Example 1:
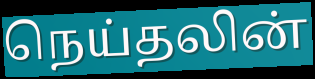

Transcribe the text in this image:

நெய்தலின்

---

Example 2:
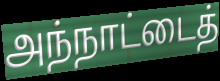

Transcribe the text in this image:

அந்நாட்டைத்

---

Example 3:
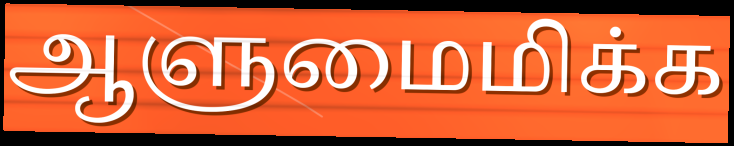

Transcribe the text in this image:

ஆளுமைமிக்க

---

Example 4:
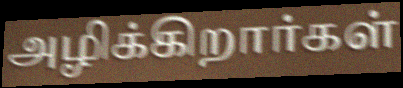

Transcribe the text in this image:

அழிக்கிறார்கள்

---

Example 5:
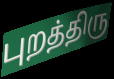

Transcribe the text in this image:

புறத்திரு